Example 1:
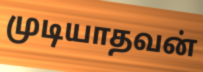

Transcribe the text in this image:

முடியாதவன்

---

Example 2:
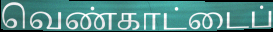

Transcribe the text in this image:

வெண்காட்டைப்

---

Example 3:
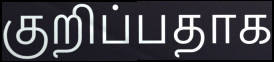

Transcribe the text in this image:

குறிப்பதாக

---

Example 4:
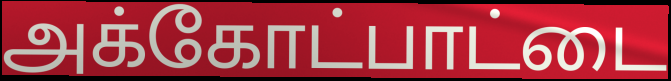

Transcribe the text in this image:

அக்கோட்பாட்டை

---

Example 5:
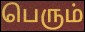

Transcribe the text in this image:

பெரும்